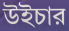
উইচার